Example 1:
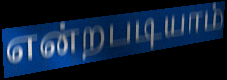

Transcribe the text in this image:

என்றபடியாம்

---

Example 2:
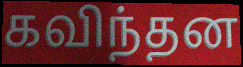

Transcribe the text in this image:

கவிந்தன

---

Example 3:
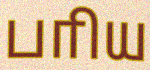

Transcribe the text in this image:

பரிய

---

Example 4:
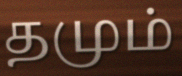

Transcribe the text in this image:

தமும்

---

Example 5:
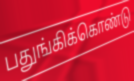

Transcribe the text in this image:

பதுங்கிக்கொண்டு